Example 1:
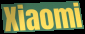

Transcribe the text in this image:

Xiaomi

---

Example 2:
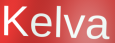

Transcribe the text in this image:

Kelva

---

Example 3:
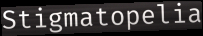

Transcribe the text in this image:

Stigmatopelia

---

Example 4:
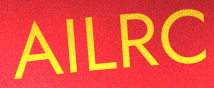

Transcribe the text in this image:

AILRC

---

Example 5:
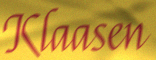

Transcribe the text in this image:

Klaasen